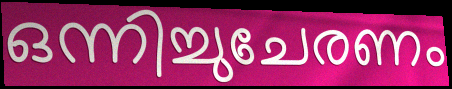
ഒന്നിച്ചുചേരണം